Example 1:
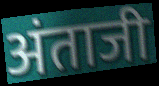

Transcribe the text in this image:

अंताजी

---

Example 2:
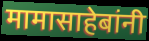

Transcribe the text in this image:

मामासाहेबांनी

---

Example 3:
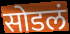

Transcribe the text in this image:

सोडलं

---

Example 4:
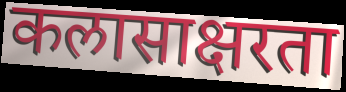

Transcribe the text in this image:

कलासाक्षरता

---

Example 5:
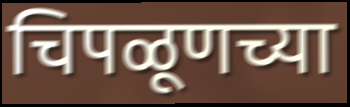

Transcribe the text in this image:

चिपळूणच्या